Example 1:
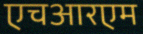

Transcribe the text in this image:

एचआरएम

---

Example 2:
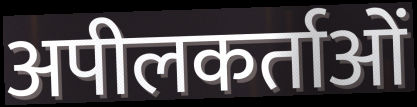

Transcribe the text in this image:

अपीलकर्ताओं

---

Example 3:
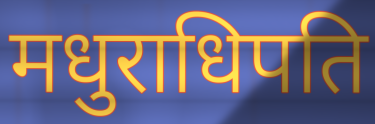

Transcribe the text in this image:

मधुराधिपति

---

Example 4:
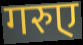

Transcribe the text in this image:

गरुए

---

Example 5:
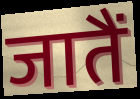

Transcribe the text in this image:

जातैं